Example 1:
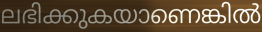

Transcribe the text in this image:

ലഭിക്കുകയാണെങ്കിൽ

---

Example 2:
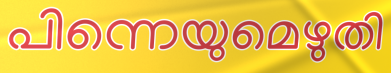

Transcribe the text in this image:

പിന്നെയുമെഴുതി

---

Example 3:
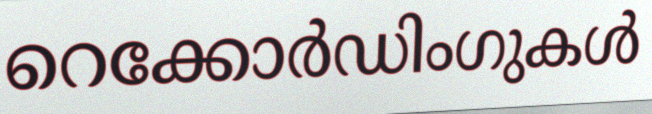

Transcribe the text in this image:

റെക്കോർഡിംഗുകൾ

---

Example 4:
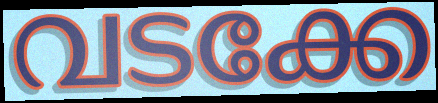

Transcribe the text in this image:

വടക്കേ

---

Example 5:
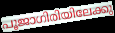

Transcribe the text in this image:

പൂജാഗിരിയിലേക്കു